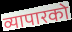
व्यापारको